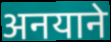
अनयाने